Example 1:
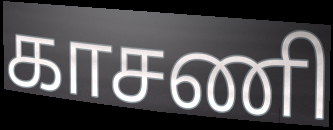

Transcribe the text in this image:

காசணி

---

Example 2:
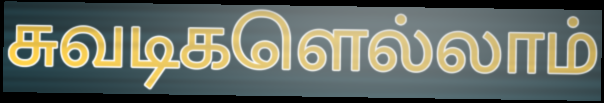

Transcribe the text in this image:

சுவடிகளெல்லாம்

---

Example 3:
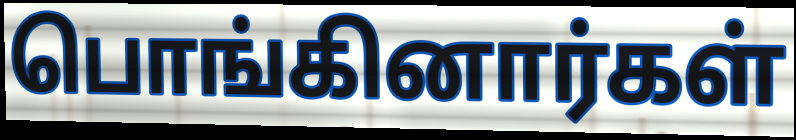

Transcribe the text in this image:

பொங்கினார்கள்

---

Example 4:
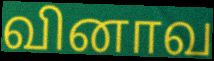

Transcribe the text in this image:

வினாவ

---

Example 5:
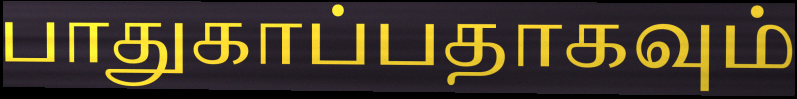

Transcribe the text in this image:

பாதுகாப்பதாகவும்